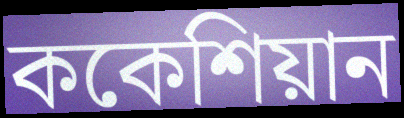
ককেশিয়ান